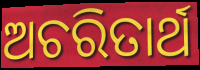
ଅଚରିତାର୍ଥ